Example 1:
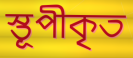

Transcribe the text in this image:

স্তূপীকৃত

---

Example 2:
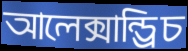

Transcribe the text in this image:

আলেক্সান্ড্রিচ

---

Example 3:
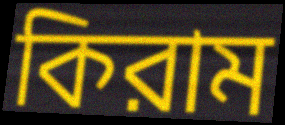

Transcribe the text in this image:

কিরাম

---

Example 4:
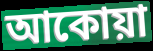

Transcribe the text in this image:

আকোয়া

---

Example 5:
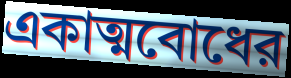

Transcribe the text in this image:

একাত্মবোধের